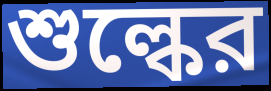
শুল্কের